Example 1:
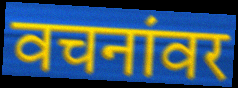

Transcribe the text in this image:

वचनांवर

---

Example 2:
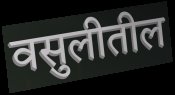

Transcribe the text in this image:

वसुलीतील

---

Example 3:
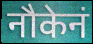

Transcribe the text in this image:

नौकेनं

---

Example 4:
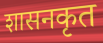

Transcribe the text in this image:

शासनकृत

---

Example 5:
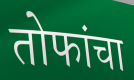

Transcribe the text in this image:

तोफांचा